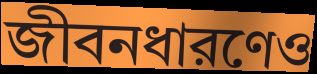
জীবনধারণেও